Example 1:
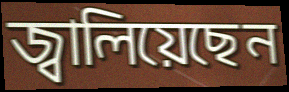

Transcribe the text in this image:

জ্বালিয়েছেন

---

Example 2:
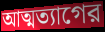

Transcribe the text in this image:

আত্মত্যাগের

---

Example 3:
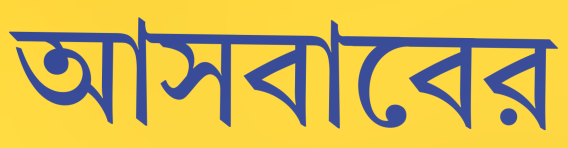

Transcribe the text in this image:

আসবাবের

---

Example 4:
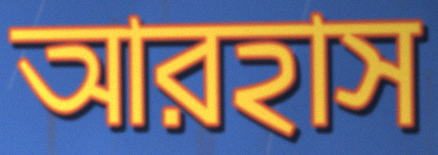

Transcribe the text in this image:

আরহাস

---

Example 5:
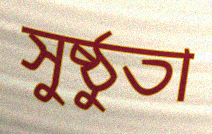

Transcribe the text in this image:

সুষ্ঠুতা